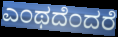
ಎಂಥದೆಂದರೆ